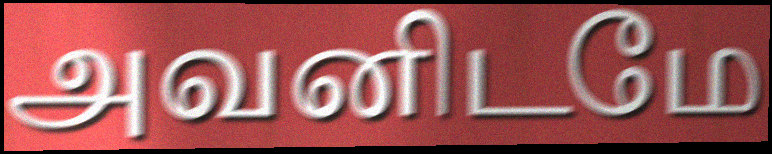
அவனிடமே